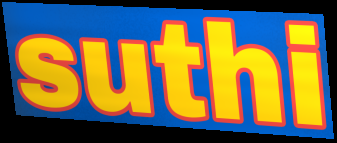
suthi